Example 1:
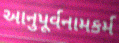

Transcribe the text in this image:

આનુપૂર્વનામકર્મ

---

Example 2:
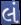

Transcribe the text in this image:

લં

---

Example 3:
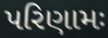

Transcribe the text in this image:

પરિણામઃ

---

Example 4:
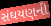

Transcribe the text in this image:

સંઘયણની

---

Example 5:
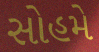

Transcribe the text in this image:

સોહમે